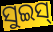
ସୁଇସ୍